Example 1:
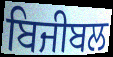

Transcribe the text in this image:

ਬਿਜੀਬਲ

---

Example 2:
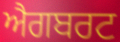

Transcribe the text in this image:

ਐਗਬਰਟ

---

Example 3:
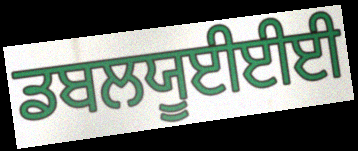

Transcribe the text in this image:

ਡਬਲਯੂਈਈਈ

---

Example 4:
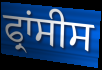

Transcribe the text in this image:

ਫ੍ਰਾਂਸੀਸ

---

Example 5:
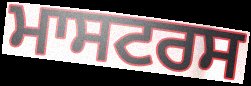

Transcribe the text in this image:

ਮਾਸਟਰਸ